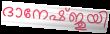
ദാനേഷ്ജുയി